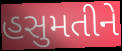
હસુમતીને